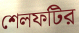
শেলফটির